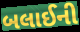
બલાઈની